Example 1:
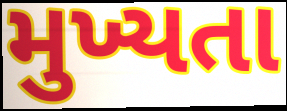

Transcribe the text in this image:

મુખ્યતા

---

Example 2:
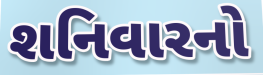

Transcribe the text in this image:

શનિવારનો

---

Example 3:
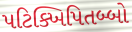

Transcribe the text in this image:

પટિક્ખિપિતબ્બો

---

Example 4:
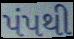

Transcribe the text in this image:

પંપથી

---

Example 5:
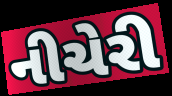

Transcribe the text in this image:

નીચેરી